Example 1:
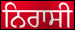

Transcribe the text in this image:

ਨਿਰਾਸੀ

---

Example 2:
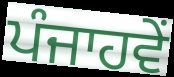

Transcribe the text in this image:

ਪੰਜਾਹਵੇਂ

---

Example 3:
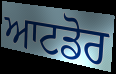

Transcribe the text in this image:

ਆਟਡੋਰ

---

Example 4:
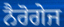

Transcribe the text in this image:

ਨੈਰੋਗੇਜ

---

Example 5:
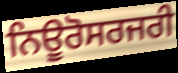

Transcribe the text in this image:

ਨਿਊਰੋਸਰਜਰੀ